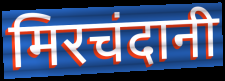
मिरचंदानी